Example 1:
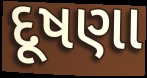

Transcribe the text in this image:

દૂષણા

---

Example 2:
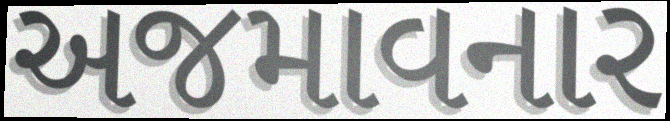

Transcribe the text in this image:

અજમાવનાર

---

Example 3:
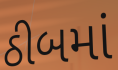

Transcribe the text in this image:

ઠીબમાં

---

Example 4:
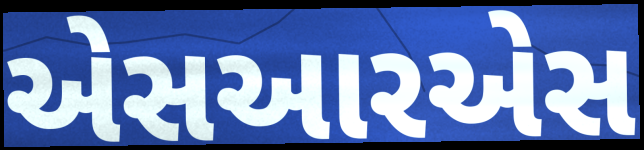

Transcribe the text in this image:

એસઆરએસ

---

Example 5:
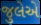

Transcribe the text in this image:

જુલેએ